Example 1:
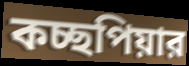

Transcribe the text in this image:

কচ্ছপিয়ার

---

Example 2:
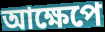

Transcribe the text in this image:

আক্ষেপে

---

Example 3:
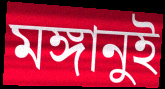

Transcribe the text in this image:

মঙ্গানুই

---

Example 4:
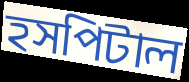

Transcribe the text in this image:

হসপিটাল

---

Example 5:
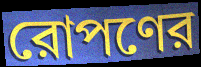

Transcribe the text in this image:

রোপণের